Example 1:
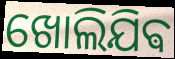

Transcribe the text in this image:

ଖୋଲିଯିଵ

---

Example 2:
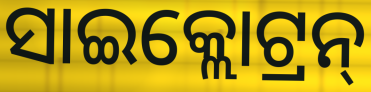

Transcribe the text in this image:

ସାଇକ୍ଲୋଟ୍ରନ୍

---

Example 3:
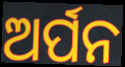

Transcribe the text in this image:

ଅର୍ପନ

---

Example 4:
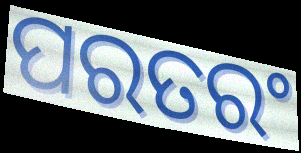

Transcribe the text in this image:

ପରତରଂ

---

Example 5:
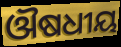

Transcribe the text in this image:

ଔଷଧୀୟ